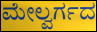
ಮೇಲ್ವರ್ಗದ